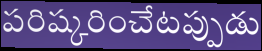
పరిష్కరించేటప్పుడు